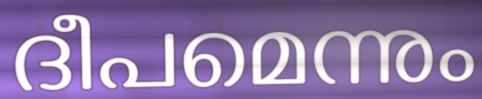
ദീപമെന്നും